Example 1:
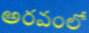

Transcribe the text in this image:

అరవంలో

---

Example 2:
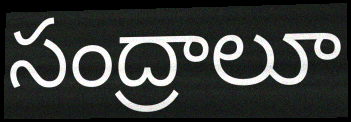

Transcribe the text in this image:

సంద్రాలూ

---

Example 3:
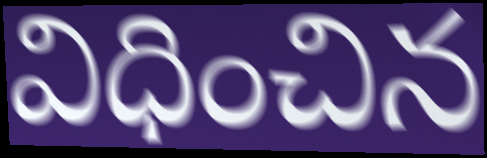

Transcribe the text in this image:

విధించిన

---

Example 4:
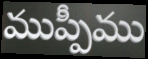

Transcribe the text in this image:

ముప్పీము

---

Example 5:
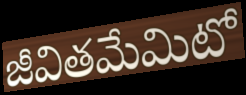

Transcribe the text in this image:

జీవితమేమిటో